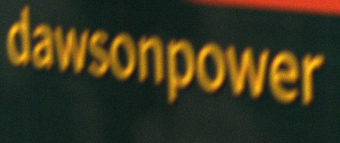
dawsonpower